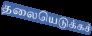
தலையெடுக்கச்